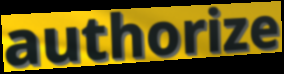
authorize